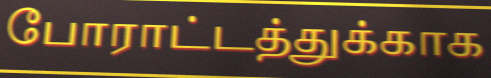
போராட்டத்துக்காக